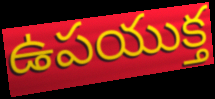
ఉపయుక్త